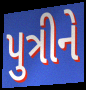
પુત્રીને